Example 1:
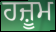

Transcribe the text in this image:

ਹਜ਼ੂਮ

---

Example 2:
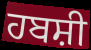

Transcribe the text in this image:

ਹਬਸ਼ੀ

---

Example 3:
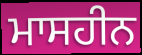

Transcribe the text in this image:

ਮਾਸਹੀਨ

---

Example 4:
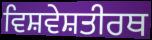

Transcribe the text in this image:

ਵਿਸ਼ਵੇਸ਼ਤੀਰਥ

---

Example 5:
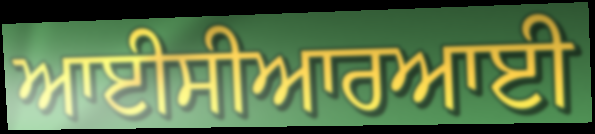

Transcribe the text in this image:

ਆਈਸੀਆਰਆਈ